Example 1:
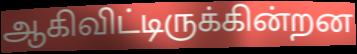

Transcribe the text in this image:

ஆகிவிட்டிருக்கின்றன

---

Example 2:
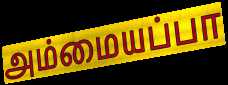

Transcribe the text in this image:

அம்மையப்பா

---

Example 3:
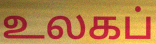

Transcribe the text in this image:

உலகப்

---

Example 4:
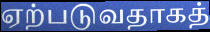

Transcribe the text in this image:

ஏற்படுவதாகத்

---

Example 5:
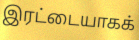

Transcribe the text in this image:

இரட்டையாகக்